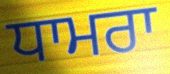
ਧਾਮਰਾ